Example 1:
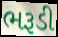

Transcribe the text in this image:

ભરૂડી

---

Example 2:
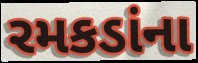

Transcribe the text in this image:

રમકડાંના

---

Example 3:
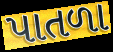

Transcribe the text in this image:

પાતળા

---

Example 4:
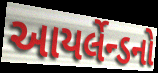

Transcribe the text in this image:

આયર્લેન્ડનો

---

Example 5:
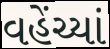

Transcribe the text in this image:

વહેંચ્યાં